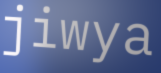
jiwya